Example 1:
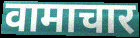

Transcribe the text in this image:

वामाचार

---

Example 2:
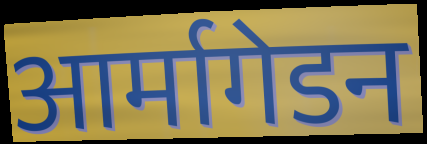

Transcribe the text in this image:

आर्मागेडन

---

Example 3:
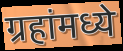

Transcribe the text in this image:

ग्रहांमध्ये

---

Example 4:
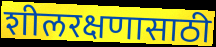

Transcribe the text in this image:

शीलरक्षणासाठी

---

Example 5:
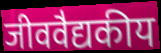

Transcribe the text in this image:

जीववैद्यकीय